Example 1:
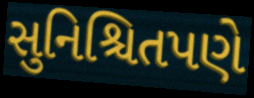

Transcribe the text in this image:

સુનિશ્ચિતપણે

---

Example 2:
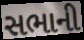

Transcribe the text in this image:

સભાની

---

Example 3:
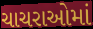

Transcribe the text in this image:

ચાચરાઓમાં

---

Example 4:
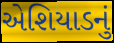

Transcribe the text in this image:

એશિયાડનું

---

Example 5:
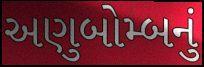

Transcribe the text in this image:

અણુબોમ્બનું